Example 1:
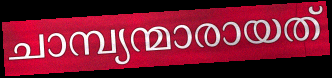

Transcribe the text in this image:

ചാമ്പ്യന്മാരായത്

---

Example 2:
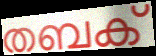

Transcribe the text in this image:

തബക്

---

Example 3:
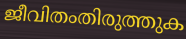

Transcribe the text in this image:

ജീവിതംതിരുത്തുക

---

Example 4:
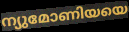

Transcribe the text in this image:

ന്യുമോണിയയെ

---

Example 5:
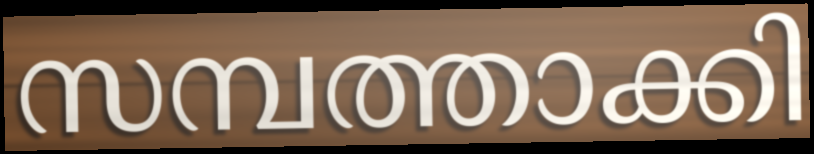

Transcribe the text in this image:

സമ്പത്താക്കി